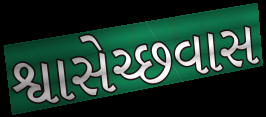
શ્વાસેચ્છવાસ